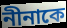
নীনাকে